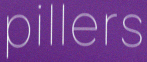
pillers